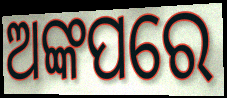
ଅଙ୍କପରେ